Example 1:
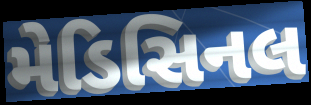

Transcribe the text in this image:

મેડિસિનલ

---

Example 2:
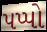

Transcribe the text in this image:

પપ્પો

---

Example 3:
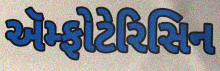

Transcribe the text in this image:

ઍમ્ફોટેરિસિન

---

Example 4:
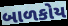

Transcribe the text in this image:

બાળકોય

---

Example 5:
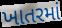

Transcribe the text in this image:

ખાતરમાં